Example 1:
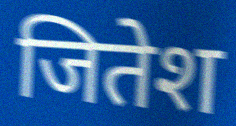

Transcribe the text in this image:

जितेश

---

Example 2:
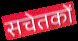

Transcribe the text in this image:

सचेतकों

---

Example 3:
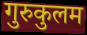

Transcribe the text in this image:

गुरुकुलम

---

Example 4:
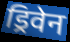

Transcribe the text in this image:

ड्रिवेन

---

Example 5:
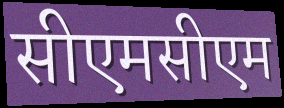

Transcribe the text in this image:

सीएमसीएम